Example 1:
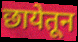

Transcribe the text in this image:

छायेतून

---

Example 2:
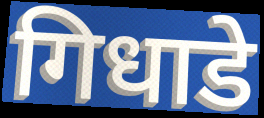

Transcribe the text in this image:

गिधाडे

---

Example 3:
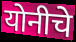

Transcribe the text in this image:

योनीचे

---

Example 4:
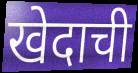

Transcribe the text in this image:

खेदाची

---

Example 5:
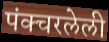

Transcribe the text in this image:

पंक्चरलेली